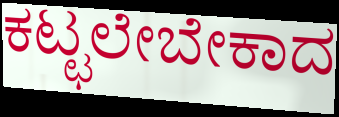
ಕಟ್ಟಲೇಬೇಕಾದ